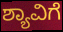
ಶ್ಯಾವಿಗೆ